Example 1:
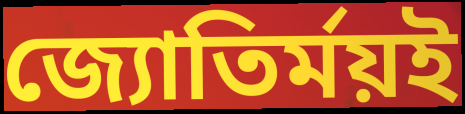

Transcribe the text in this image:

জ্যোতির্ময়ই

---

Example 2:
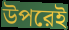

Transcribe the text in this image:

উপরেই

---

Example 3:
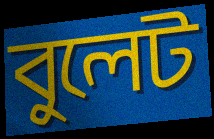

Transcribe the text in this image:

বুলেট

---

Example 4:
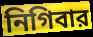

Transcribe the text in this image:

নিগিবার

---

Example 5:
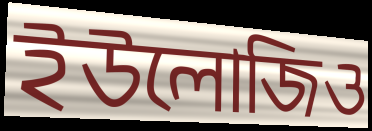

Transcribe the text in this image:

ইউলোজিও